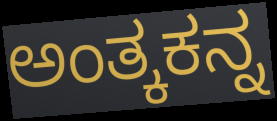
ಅಂತ್ಕಕನ್ನ